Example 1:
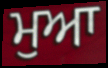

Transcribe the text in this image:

ਮੁਆ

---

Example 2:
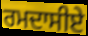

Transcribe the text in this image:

ਰਮਦਾਸੀਏ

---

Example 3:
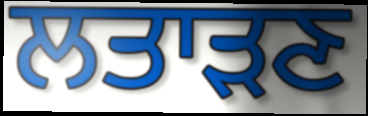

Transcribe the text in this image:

ਲਤਾੜਣ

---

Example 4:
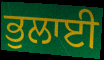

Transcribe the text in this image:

ਭੁਲਾਈ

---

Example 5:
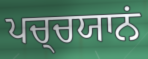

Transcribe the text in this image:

ਪਚ੍ਚਯਾਨਂ